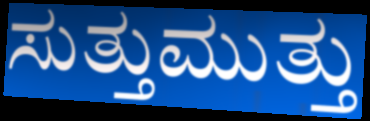
ಸುತ್ತುಮುತ್ತು